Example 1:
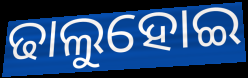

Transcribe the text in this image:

ଢାଲୁହୋଇ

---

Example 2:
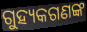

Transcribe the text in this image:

ଗୁହ୍ୟକଗଣଙ୍କ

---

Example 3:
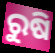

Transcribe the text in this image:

ରୁଷି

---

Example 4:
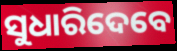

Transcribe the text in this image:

ସୁଧାରିଦେବେ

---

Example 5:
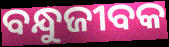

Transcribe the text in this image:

ବନ୍ଧୁଜୀବକ